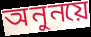
অনুনয়ে